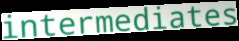
intermediates